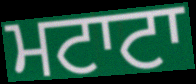
ਮਟਾਟਾ